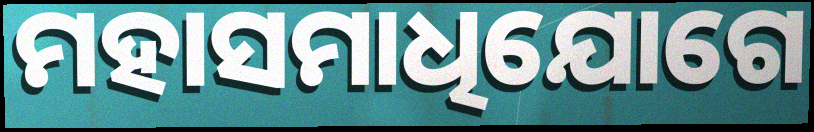
ମହାସମାଧିଯୋଗେ